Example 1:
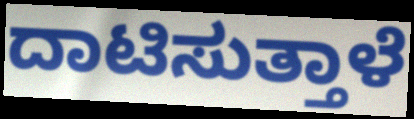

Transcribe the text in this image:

ದಾಟಿಸುತ್ತಾಳೆ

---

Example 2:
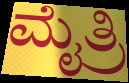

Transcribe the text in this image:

ಮೈತ್ರಿ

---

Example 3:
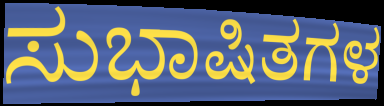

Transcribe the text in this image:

ಸುಭಾಷಿತಗಳ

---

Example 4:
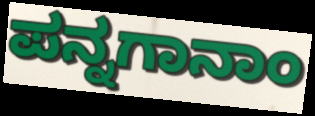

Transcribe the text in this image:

ಪನ್ನಗಾನಾಂ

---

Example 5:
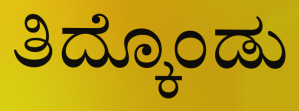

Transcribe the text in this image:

ತಿದ್ಕೊಂಡು